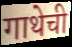
गाथेची